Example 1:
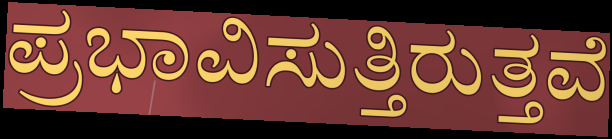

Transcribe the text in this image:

ಪ್ರಭಾವಿಸುತ್ತಿರುತ್ತವೆ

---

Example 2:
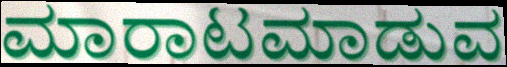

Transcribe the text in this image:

ಮಾರಾಟಮಾಡುವ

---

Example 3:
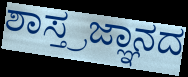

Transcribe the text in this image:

ಶಾಸ್ತ್ರಜ್ಞಾನದ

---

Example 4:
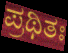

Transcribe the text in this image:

ಪ್ರಥಿತಃ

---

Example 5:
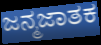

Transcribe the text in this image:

ಜನ್ಮಜಾತಕ